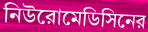
নিউরোমেডিসিনের